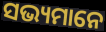
ସଭ୍ୟମାନେ